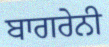
ਬਾਗਰੇਨੀ